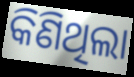
କିଣିଥିଲା